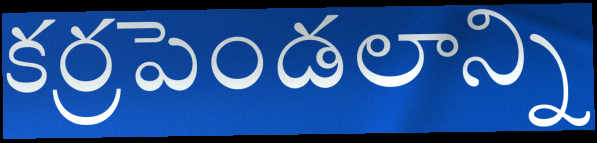
కర్రపెండలాన్ని